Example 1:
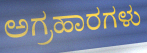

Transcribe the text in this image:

ಅಗ್ರಹಾರಗಳು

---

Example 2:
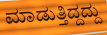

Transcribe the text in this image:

ಮಾಡುತ್ತಿದ್ದದ್ದು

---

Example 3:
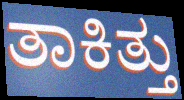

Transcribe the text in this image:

ತಾಕಿತ್ತು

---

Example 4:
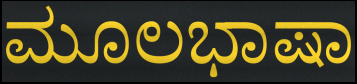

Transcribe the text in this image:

ಮೂಲಭಾಷಾ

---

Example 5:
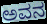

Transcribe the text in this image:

ಅವನ